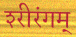
श्रीरंगम्